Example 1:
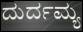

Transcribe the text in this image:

ದುರ್ದಮ್ಯ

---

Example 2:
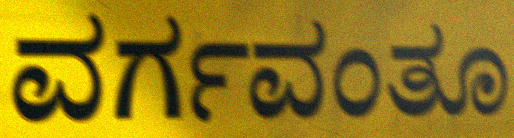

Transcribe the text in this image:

ವರ್ಗವಂತೂ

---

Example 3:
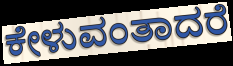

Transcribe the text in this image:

ಕೇಳುವಂತಾದರೆ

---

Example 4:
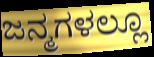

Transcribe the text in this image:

ಜನ್ಮಗಳಲ್ಲೂ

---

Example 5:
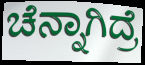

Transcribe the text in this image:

ಚೆನ್ನಾಗಿದ್ರೆ